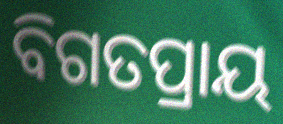
ବିଗତପ୍ରାୟ